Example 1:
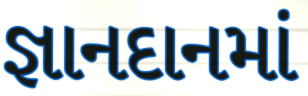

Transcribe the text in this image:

જ્ઞાનદાનમાં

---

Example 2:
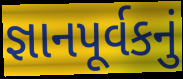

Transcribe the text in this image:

જ્ઞાનપૂર્વકનું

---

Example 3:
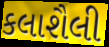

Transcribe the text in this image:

કલાશૈલી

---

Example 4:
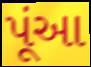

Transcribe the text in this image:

પૂંઆ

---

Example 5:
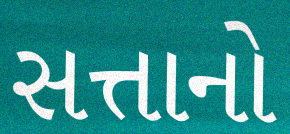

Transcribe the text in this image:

સત્તાનો